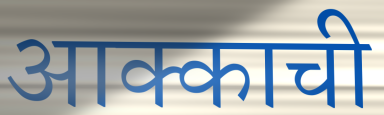
आक्काची